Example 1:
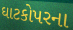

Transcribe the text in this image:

ઘાટકોપરના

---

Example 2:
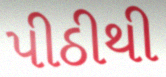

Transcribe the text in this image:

પીઠીથી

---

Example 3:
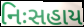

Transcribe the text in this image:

નિઃસહાય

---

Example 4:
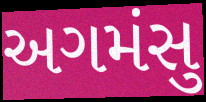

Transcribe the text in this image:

અગમંસુ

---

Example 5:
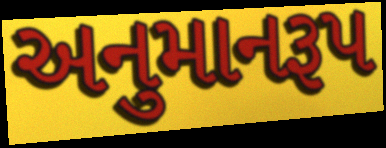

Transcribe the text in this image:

અનુમાનરૂપ